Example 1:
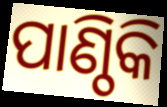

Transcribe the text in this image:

ପାଣ୍ଠିକି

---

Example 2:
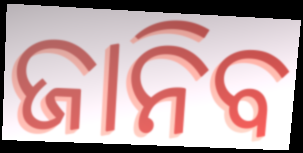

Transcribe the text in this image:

ଜାନିବ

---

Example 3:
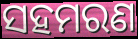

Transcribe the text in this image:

ସହମରଣ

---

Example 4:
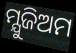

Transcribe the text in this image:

ମ୍ଯୁଜିଅମ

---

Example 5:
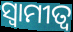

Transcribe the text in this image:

ସ୍ଵାମୀତ୍ବ